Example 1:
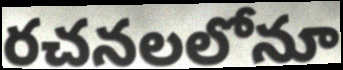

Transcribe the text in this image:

రచనలలోనూ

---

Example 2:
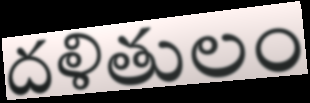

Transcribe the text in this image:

దళితులం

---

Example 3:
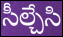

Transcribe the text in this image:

సీల్చేసి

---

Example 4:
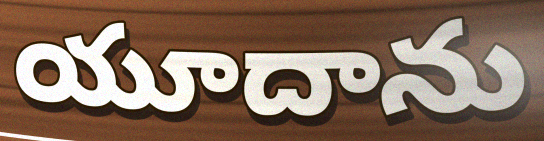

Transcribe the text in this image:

యూదాను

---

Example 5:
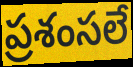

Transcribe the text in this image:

ప్రశంసలే